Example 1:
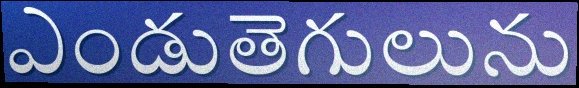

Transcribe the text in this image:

ఎండుతెగులును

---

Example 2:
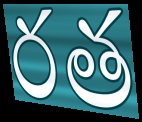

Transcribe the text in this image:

రత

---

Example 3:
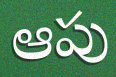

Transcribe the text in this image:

ఆపు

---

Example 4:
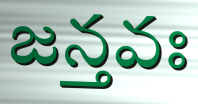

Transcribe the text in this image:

జన్తవః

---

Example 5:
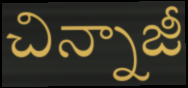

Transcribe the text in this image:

చిన్నాజీ